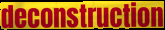
deconstruction